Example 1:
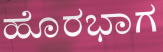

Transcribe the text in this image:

ಹೊರಭಾಗ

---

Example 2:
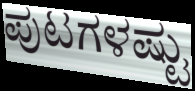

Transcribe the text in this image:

ಪುಟಗಳಷ್ಟು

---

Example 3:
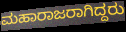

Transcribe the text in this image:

ಮಹಾರಾಜರಾಗಿದ್ದರು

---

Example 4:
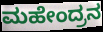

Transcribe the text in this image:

ಮಹೇಂದ್ರನ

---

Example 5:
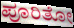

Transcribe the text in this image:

ಪೂರಿತೋ